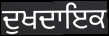
ਦੁਖਦਾਇਕ